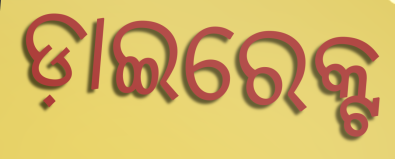
ଡ଼ାଇରେକ୍ଟ